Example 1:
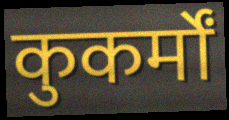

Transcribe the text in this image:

कुकर्मों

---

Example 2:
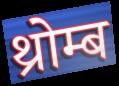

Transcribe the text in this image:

थ्रोम्ब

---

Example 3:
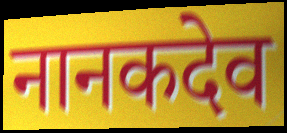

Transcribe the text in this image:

नानकदेव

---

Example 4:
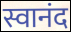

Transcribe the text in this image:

स्वानंद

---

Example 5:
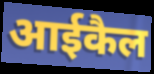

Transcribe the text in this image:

आईकैल